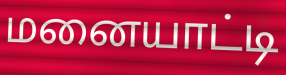
மனையாட்டி